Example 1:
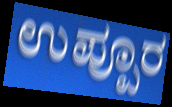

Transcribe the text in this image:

ಉಪ್ಪೂರ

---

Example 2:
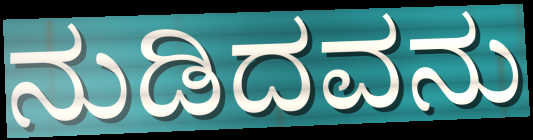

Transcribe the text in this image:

ನುಡಿದವನು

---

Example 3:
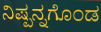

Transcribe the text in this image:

ನಿಷ್ಪನ್ನಗೊಂಡ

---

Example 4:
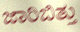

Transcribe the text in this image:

ಜಾರಿಬಿತ್ತು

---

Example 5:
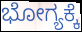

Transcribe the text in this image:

ಭೋಗ್ಯಕ್ಕೆ